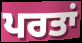
ਪਰਤਾਂ